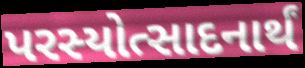
પરસ્યોત્સાદનાર્થં